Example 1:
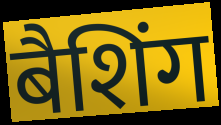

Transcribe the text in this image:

बैशिंग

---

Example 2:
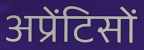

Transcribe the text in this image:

अप्रेंटिसों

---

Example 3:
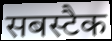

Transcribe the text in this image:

सबस्टैक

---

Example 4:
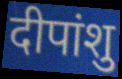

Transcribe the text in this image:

दीपांशु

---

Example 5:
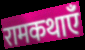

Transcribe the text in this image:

रामकथाएँ